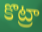
కొట్రా